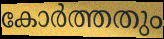
കോർത്തതും